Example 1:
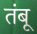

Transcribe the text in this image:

तंबू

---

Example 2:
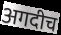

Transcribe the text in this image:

अगदीच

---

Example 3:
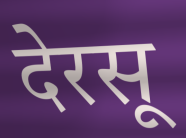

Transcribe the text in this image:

देरसू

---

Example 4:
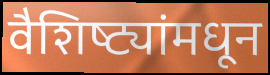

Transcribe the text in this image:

वैशिष्ट्यांमधून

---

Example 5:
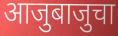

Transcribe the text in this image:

आजुबाजुचा